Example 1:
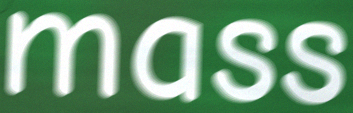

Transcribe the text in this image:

mass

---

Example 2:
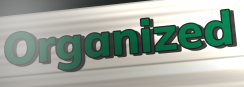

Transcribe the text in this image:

Organized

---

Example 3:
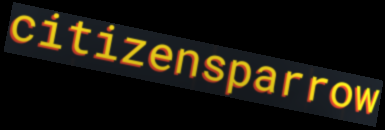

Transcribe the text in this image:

citizensparrow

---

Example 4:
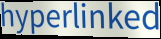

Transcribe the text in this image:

hyperlinked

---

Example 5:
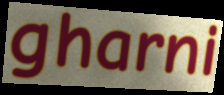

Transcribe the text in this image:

gharni